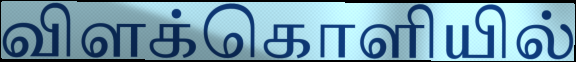
விளக்கொளியில்